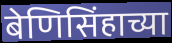
बेणिसिंहाच्या